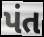
પંત